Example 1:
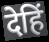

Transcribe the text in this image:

देहिं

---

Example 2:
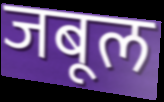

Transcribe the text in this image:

जबूल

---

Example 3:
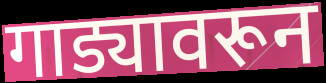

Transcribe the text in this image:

गाड्यावरून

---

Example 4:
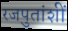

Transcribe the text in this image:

रजपुतांशीं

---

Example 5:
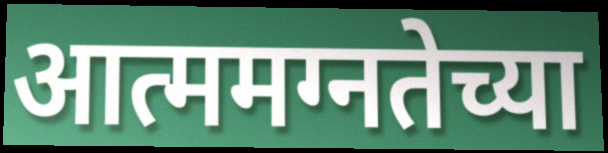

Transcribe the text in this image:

आत्ममग्नतेच्या